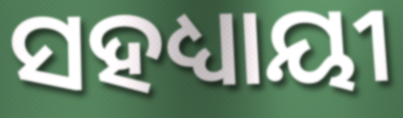
ସହଧ୍ୟାୟୀ